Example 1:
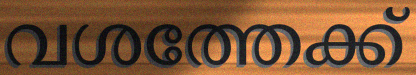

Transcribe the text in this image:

വശത്തേക്ക്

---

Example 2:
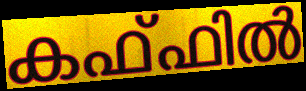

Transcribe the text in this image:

കഫ്ഫിൽ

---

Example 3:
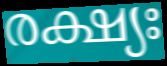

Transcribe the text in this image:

രക്ഷ്യഃ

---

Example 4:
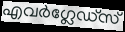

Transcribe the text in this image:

എവർഗ്ലേഡ്സ്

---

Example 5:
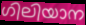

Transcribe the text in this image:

ഗിലിയാന